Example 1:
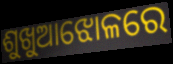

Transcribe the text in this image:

ଶୁଖୁଆଝୋଳରେ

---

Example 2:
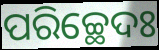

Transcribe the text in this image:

ପରିଚ୍ଛେଦଃ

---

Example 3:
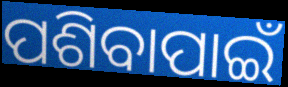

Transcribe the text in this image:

ପଶିବାପାଇଁ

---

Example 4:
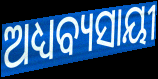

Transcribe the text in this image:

ଅଧ୍ୟବ୍ୟସାୟୀ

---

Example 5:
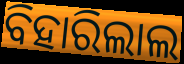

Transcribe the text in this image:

ବିହାରିଲାଲ